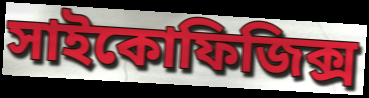
সাইকোফিজিক্স